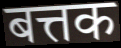
बत्तक